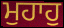
ਮੁਹਾਹੁ